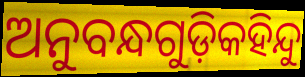
ଅନୁବନ୍ଧଗୁଡ଼ିକହିନ୍ଦୁ